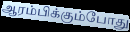
ஆரம்பிக்கும்போது